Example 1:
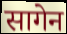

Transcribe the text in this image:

सागेन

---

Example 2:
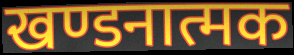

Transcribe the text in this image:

खण्डनात्मक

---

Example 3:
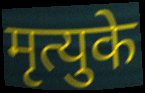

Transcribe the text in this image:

मृत्युके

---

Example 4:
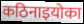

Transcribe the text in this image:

कठिनाइयोका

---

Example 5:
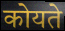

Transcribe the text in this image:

कोयते